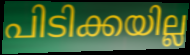
പിടിക്കയില്ല